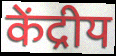
केंद्रीय